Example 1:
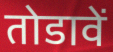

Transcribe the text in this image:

तोडावें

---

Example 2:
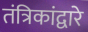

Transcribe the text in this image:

तंत्रिकांद्वारे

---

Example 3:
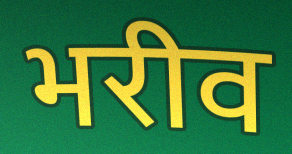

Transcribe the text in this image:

भरीव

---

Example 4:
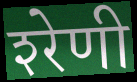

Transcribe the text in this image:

श्रेणी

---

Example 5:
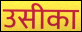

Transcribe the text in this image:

उसीका